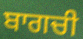
ਬਾਗਚੀ